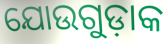
ଯୋଉଗୁଡ଼ାକ